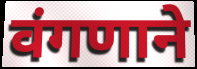
वंगणाने